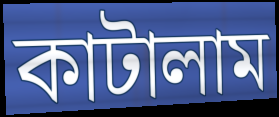
কাটালাম